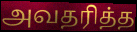
அவதரித்த